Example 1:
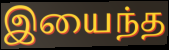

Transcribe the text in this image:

இயைந்த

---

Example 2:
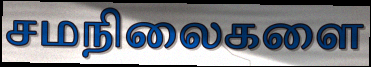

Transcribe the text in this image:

சமநிலைகளை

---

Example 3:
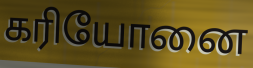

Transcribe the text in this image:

கரியோனை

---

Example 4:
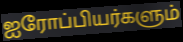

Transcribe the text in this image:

ஐரோப்பியர்களும்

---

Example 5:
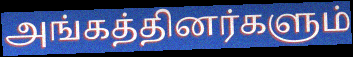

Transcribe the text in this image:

அங்கத்தினர்களும்